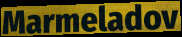
Marmeladov